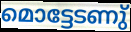
മൊട്ടേടണു്